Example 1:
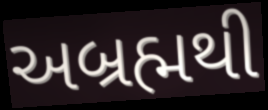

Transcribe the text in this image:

અબ્રહ્મથી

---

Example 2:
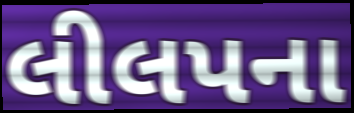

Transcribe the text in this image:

લીલપના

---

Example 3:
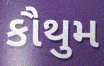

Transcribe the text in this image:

કૌથુમ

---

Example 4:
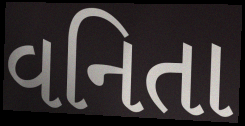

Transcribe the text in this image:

વનિતા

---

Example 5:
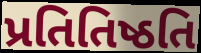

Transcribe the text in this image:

પ્રતિતિષ્ઠતિ